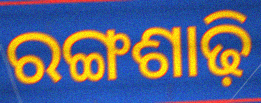
ରଙ୍ଗଶାଢ଼ି